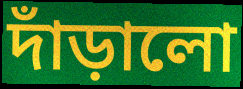
দাঁড়ালো